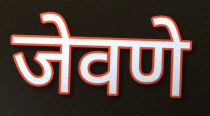
जेवणे